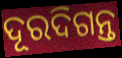
ଦୂରଦିଗନ୍ତ